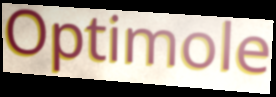
Optimole